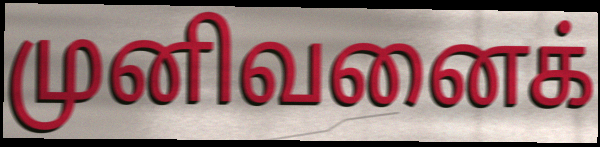
முனிவனைக்